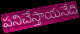
పనిచేస్తాయనేది